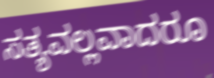
ಸತ್ಯವಲ್ಲವಾದರೂ